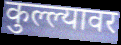
कुल्ल्यावर